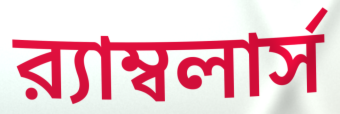
র‍্যাম্বলার্স